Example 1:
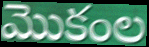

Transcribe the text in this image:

మొకంల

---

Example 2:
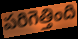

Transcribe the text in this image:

పరిగెత్తింది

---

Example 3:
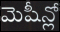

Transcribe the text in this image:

మెషీన్లో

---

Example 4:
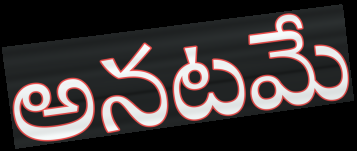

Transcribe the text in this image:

అనటమే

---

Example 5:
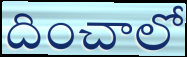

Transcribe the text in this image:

దించాలో